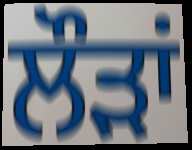
ਲੌੜਾਂ